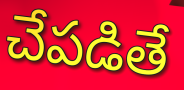
చేపడితే